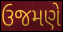
ઉજમણે